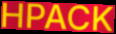
HPACK